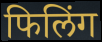
फिलिंग